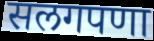
सलगपणा